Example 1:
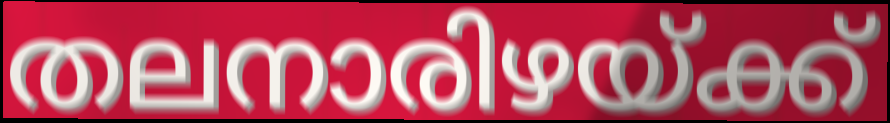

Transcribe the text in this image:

തലനാരിഴയ്ക്ക്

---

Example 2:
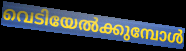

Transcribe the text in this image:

വെടിയേൽക്കുമ്പോൾ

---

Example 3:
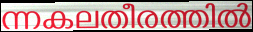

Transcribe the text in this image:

ന്നകലതീരത്തിൽ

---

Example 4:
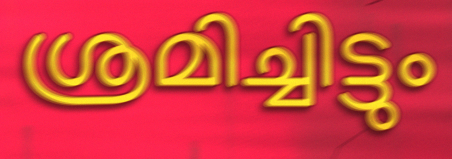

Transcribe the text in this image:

ശ്രമിച്ചിട്ടും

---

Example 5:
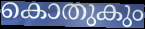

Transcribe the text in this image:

കൊതുകും